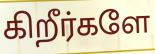
கிறீர்களே